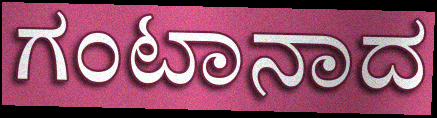
ಗಂಟಾನಾದ